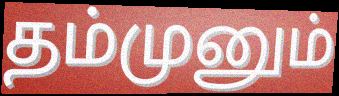
தம்முனும்